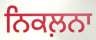
ਨਿਕਲ਼ਨਾ